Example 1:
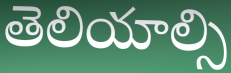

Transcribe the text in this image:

తెలియాల్సి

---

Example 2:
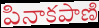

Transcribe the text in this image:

పినాకపాణి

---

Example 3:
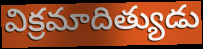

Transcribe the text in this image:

విక్రమాదిత్యుడు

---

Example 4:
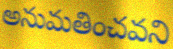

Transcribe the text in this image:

అనుమతించవని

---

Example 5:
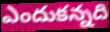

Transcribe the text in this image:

ఎందుకన్నది